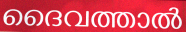
ദൈവത്താൽ